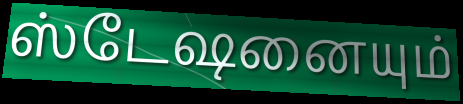
ஸ்டேஷனையும்